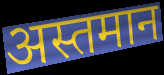
अस्तमान